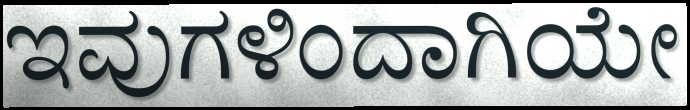
ಇವುಗಳಿಂದಾಗಿಯೇ